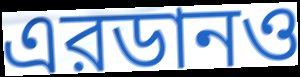
এরডানও